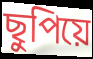
ছুপিয়ে